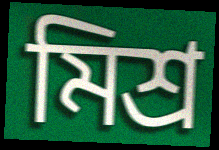
মিশ্ৰ